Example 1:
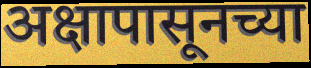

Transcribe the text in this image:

अक्षापासूनच्या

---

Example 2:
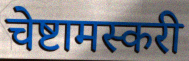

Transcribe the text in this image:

चेष्टामस्करी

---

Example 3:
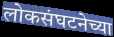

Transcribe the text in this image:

लोकसंघटनेच्या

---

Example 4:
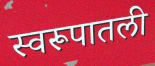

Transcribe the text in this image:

स्वरूपातली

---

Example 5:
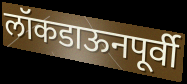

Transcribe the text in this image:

लॉकडाऊनपूर्वी